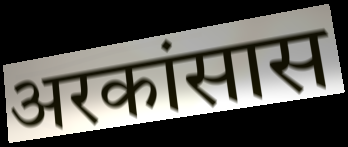
अरकांसास